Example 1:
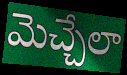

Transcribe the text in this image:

మెచ్చేలా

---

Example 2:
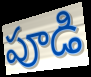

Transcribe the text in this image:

పూడి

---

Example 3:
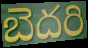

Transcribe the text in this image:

బెదరి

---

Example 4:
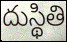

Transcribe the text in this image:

దుస్థితి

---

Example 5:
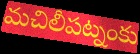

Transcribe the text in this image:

మచిలీపట్నంకు